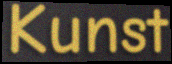
Kunst